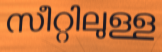
സീറ്റിലുള്ള